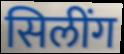
सिलींग